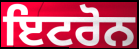
ਇਟਰੋਨ